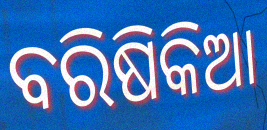
ବରିଷିକିଆ